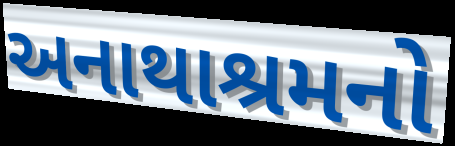
અનાથાશ્રમનો